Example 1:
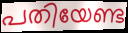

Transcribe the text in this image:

പതിയേണ്ട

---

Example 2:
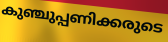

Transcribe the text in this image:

കുഞ്ചുപ്പണിക്കരുടെ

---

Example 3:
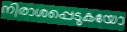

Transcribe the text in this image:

നിരാശപ്പെടുകയോ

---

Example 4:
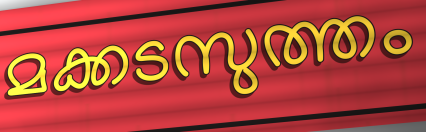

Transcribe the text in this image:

മക്കടസുത്തം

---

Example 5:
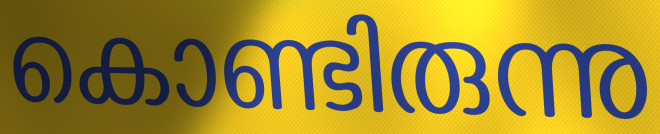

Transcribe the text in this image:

കൊണ്ടിരുന്നു